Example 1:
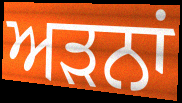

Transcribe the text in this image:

ਅੜਨਾਂ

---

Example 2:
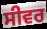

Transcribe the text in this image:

ਸੀਵਰ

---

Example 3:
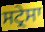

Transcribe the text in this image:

ਸਟ੍ਰੇਸਾ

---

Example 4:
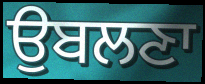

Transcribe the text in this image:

ਉਬਲਣਾ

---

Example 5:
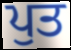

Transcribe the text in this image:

ਪੁਤ